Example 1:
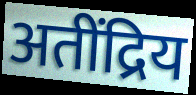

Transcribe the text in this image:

अतींद्रिय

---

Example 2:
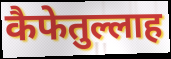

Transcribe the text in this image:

कैफेतुल्लाह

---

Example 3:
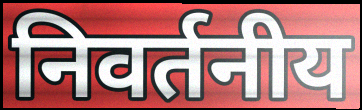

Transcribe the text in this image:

निवर्तनीय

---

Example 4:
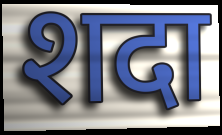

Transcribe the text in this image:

शदा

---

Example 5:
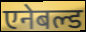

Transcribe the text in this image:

एनेबल्ड